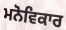
ਮਨੋਵਿਕਾਰ